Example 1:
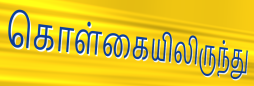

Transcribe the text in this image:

கொள்கையிலிருந்து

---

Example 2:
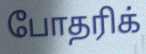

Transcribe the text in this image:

போதரிக்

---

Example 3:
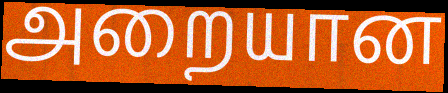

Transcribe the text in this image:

அறையான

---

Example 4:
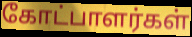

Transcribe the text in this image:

கோட்பாளர்கள்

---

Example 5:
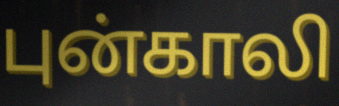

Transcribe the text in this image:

புன்காலி